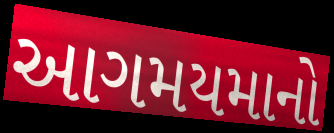
આગમયમાનો